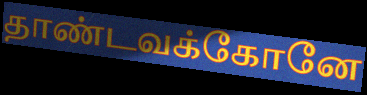
தாண்டவக்கோனே